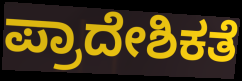
ಪ್ರಾದೇಶಿಕತೆ